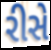
રીસે